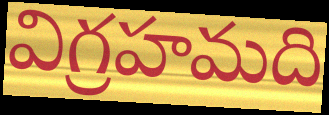
విగ్రహమది